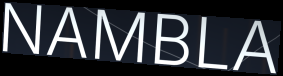
NAMBLA